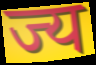
ज्य